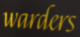
warders